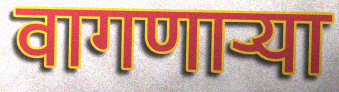
वागणाऱ्या